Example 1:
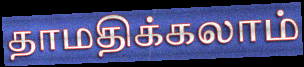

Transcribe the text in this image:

தாமதிக்கலாம்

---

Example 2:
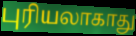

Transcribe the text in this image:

புரியலாகாது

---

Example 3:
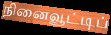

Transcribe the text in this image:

நினைவூட்டிப்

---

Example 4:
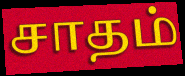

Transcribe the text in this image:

சாதம்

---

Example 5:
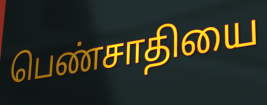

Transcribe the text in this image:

பெண்சாதியை